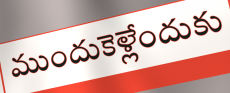
ముందుకెళ్లేందుకు